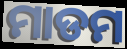
ମାଡମ